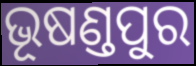
ଭୂଷଣ୍ଡପୁର